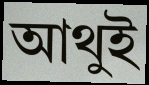
আথুই